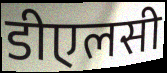
डीएलसी